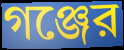
গঞ্জের